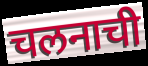
चलनाची